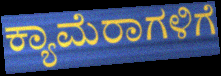
ಕ್ಯಾಮೆರಾಗಳಿಗೆ